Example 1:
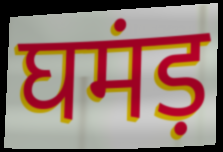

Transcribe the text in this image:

घमंड़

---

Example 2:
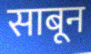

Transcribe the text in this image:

साबून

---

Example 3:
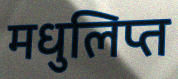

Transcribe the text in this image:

मधुलिप्त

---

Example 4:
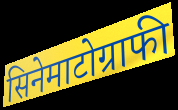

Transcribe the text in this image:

सिनेमाटोग्राफी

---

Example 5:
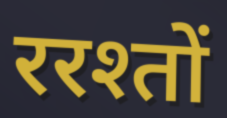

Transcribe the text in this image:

ररश्तों